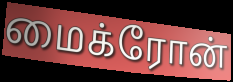
மைக்ரோன்